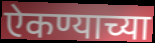
ऐकण्याच्या